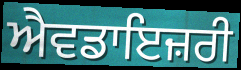
ਐਵਡਾਇਜ਼ਰੀ